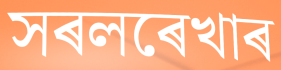
সৰলৰেখাৰ